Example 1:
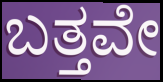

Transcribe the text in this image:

ಬತ್ತವೇ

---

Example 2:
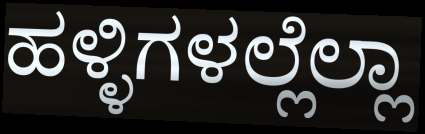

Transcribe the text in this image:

ಹಳ್ಳಿಗಳಲ್ಲೆಲ್ಲಾ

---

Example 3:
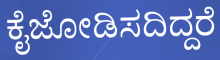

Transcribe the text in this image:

ಕೈಜೋಡಿಸದಿದ್ದರೆ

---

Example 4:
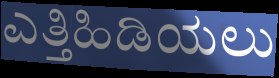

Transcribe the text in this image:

ಎತ್ತಿಹಿಡಿಯಲು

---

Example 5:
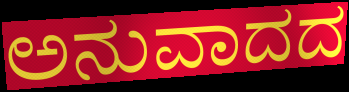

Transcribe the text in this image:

ಅನುವಾದದ